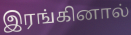
இரங்கினால்